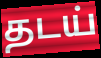
தடய்